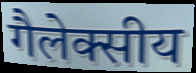
गैलेक्सीय